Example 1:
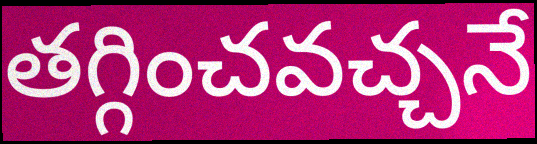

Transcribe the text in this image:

తగ్గించవచ్చనే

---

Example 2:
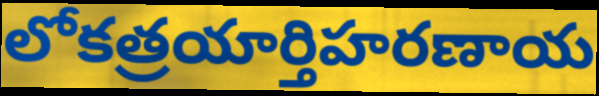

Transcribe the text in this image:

లోకత్రయార్తిహరణాయ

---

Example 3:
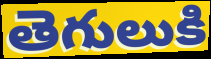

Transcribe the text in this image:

తెగులుకి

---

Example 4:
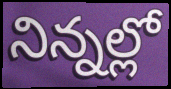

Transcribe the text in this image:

నిన్నల్లో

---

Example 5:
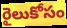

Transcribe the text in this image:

రైలుకోసం